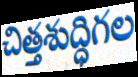
చిత్తశుద్ధిగల